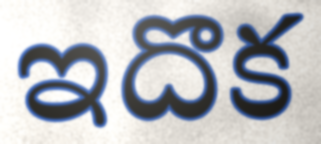
ఇదొక